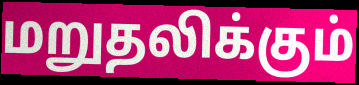
மறுதலிக்கும்